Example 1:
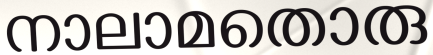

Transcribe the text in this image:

നാലാമതൊരു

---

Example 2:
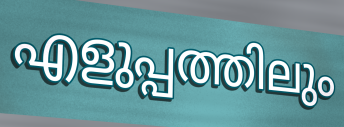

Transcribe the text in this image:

എളുപ്പത്തിലും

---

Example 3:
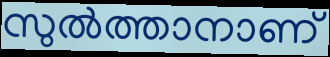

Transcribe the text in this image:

സുൽത്താനാണ്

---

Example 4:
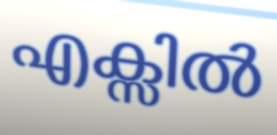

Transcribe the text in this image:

എക്സിൽ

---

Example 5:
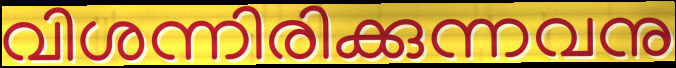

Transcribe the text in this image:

വിശന്നിരിക്കുന്നവനു